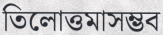
তিলোত্তমাসম্ভব